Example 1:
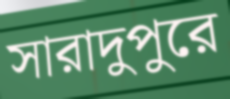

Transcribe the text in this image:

সারাদুপুরে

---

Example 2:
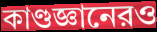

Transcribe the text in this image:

কাণ্ডজ্ঞানেরও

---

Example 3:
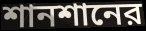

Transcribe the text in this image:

শানশানের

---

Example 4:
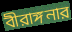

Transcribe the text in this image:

বীরাঙ্গনার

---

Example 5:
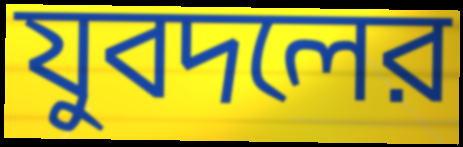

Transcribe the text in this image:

যুবদলের